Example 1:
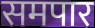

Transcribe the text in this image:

समपार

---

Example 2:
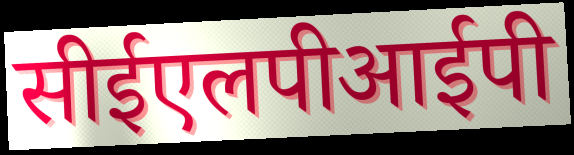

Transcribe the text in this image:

सीईएलपीआईपी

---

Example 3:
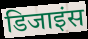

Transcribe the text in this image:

डिजाइंस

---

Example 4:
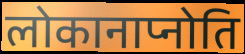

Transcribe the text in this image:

लोकानाप्नोति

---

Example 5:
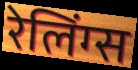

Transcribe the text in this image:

रेलिंग्स